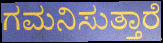
ಗಮನಿಸುತ್ತಾರೆ